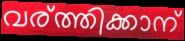
വര്ത്തിക്കാന്